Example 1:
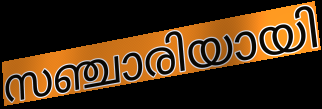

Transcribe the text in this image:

സഞ്ചാരിയായി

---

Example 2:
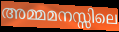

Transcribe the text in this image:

അമ്മമനസ്സിലെ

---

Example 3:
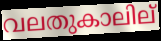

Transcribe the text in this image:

വലതുകാലില്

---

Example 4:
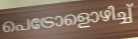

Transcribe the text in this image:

പെട്രോളൊഴിച്ച്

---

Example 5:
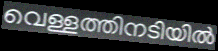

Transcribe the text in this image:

വെള്ളത്തിനടിയിൽ